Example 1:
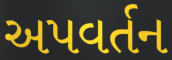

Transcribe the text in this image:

અપવર્તન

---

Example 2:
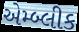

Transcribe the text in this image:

એમ્બ્લીક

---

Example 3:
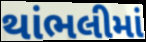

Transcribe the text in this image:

થાંભલીમાં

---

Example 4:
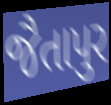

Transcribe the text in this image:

જૈતાપુર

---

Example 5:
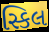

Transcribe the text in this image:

સ્કિલ